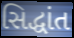
સિદ્ધાંત